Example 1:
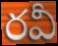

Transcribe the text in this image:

రవీ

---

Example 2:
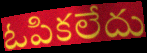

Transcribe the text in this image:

ఓపికలేదు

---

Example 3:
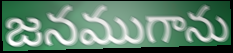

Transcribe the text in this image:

జనముగాను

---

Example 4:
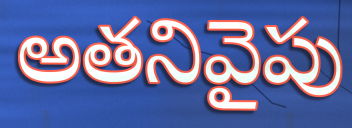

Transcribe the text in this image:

అతనివైపు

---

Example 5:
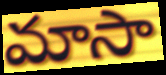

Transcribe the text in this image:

మాసా